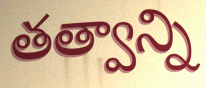
తత్వాన్ని